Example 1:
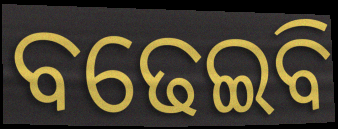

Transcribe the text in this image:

ବଢେଇବି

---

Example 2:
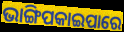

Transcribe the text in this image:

ଭାଙ୍ଗିପକାଇପାରେ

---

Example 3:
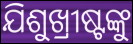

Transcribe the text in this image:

ଯିଶୁଖ୍ରୀଷ୍ଟଙ୍କୁ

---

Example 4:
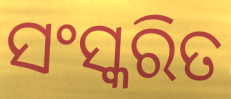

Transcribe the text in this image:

ସଂସ୍କରିତ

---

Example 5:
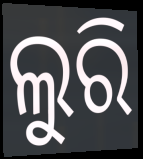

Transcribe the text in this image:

ଲୁରି